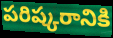
పరిష్కరానికి